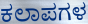
ಕಲಾಪಗಳ